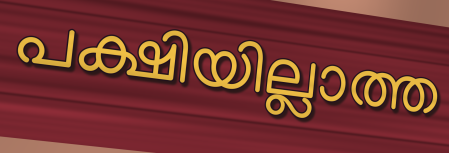
പക്ഷിയില്ലാത്ത